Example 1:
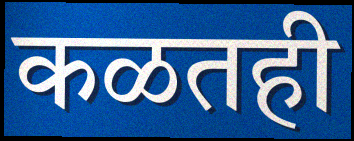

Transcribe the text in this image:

कळतही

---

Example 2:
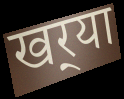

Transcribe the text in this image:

खर्या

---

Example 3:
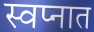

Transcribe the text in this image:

स्वप्नात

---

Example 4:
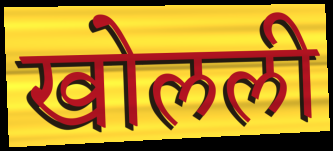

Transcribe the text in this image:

खोलली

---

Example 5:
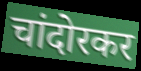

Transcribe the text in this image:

चांदोरकर